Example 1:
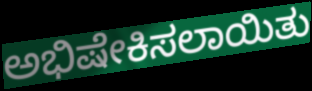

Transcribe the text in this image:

ಅಭಿಷೇಕಿಸಲಾಯಿತು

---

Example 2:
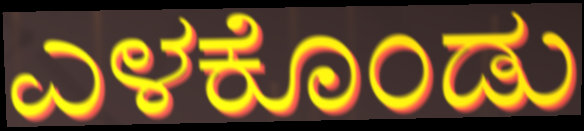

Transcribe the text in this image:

ಎಳಕೊಂಡು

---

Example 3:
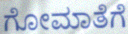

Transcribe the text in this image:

ಗೋಮಾತೆಗೆ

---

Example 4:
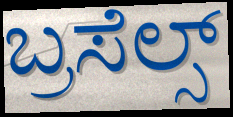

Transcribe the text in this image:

ಬ್ರಸೆಲ್ಸ್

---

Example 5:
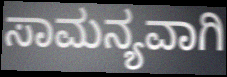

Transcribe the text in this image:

ಸಾಮನ್ಯವಾಗಿ